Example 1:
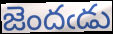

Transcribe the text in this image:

జెందఁడు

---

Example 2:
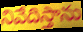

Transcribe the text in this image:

నివేదిస్తాను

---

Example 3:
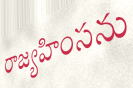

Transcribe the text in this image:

రాజ్యహింసను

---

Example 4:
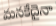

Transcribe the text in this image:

మనకేదైనా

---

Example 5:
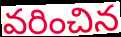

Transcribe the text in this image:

వరించిన